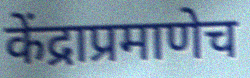
केंद्राप्रमाणेच